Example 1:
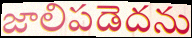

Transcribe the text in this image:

జాలిపడెదను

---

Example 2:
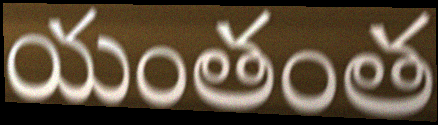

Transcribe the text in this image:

యంతంత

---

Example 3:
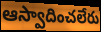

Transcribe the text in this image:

ఆస్వాదించలేరు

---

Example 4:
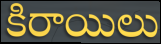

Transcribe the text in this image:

కిరాయిలు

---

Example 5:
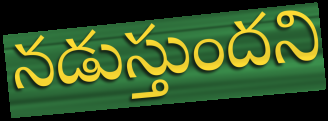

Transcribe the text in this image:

నడుస్తుందని